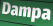
Dampa